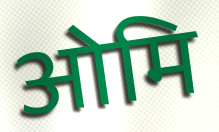
ओमि